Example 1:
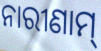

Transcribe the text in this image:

ନାରୀଣାମ୍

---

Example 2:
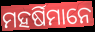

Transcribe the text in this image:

ମହର୍ଷିମାନେ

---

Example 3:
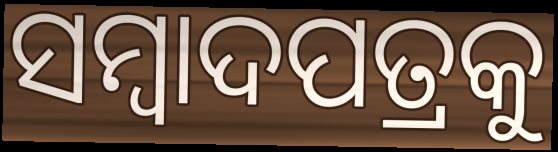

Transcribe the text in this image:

ସମ୍ବାଦପତ୍ରକୁ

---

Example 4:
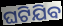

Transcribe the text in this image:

ଘଟିଯିବ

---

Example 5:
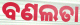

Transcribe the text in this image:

ବଣଲତା